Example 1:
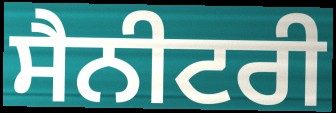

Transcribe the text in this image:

ਸੈਨੀਟਰੀ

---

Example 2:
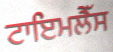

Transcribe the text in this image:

ਟਾਇਮਲੈੱਸ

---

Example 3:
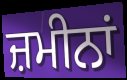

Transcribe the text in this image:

ਜ਼ਮੀਨਾਂ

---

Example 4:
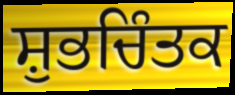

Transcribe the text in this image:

ਸ਼ੁਭਚਿੰਤਕ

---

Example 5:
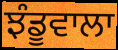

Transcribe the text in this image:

ਝੰਡੂਵਾਲਾ